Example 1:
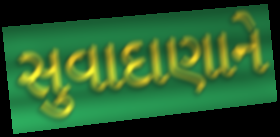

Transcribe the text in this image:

સુવાદાણાને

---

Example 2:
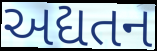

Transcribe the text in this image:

અદ્યતન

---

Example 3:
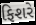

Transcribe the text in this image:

ફિશરે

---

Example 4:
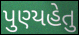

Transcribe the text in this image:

પુણ્યહેતુ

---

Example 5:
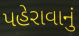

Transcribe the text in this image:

પહેરાવાનું